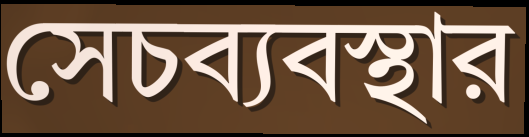
সেচব্যবস্থার